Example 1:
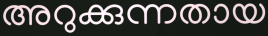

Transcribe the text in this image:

അറുക്കുന്നതായ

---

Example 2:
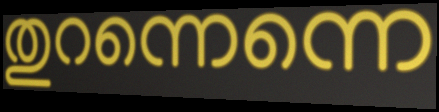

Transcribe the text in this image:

തുറന്നെന്നെ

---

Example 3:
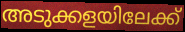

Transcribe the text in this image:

അടുക്കളയിലേക്ക്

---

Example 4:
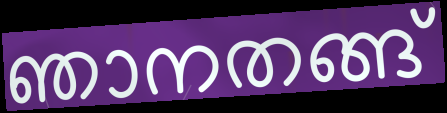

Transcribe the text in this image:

ഞാനതങ്ങ്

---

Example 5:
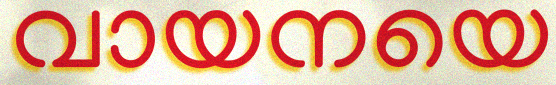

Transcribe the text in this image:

വായനയെ